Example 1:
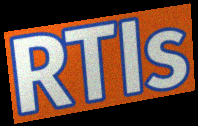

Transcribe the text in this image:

RTIs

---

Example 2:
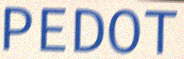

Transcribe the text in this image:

PEDOT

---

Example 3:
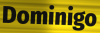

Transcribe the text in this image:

Dominigo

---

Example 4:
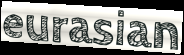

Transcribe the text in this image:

eurasian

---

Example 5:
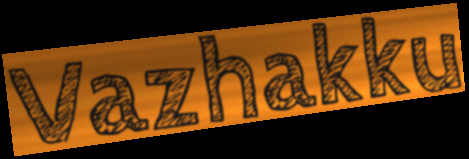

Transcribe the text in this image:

Vazhakku